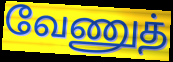
வேணுத்